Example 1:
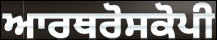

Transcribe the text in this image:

ਆਰਥਰੋਸਕੋਪੀ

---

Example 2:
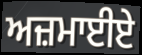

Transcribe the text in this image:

ਅਜ਼ਮਾਈਏ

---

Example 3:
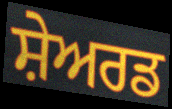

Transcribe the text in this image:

ਸ਼ੇਅਰਡ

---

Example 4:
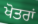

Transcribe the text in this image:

ਖੋਤਰਾਂ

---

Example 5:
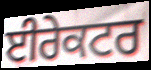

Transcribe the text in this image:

ਈਰੇਕਟਰ